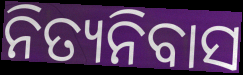
ନିତ୍ୟନିବାସ